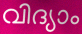
വിദ്യാം